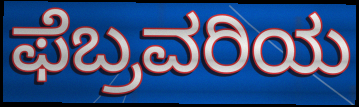
ಫೆಬ್ರವರಿಯ